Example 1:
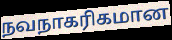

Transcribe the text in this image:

நவநாகரிகமான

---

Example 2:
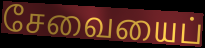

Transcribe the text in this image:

சேவையைப்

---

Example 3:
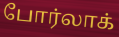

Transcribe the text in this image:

போர்லாக்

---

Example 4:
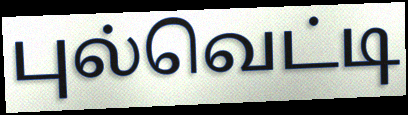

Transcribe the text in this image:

புல்வெட்டி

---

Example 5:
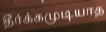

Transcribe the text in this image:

தீர்க்கமுடியாத